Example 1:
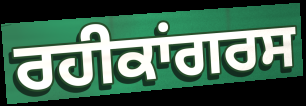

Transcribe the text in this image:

ਰਹੀਕਾਂਗਰਸ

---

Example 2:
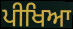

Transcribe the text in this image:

ਪੀਖਿਆ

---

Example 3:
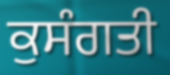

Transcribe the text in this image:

ਕੁਸੰਗਤੀ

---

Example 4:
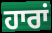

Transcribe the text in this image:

ਹਾਰਾਂ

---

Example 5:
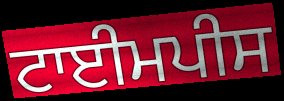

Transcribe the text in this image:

ਟਾਈਮਪੀਸ